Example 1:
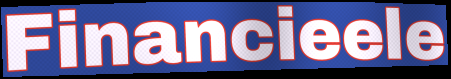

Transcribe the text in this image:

Financieele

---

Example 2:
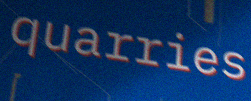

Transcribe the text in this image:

quarries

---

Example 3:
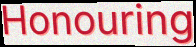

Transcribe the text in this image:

Honouring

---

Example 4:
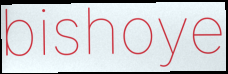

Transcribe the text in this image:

bishoye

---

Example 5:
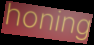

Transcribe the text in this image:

honing